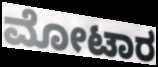
ಮೋಟಾರ